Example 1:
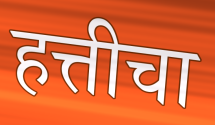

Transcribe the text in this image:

हत्तीचा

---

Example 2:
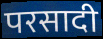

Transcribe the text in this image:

परसादी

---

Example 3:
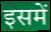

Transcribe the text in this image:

इसमें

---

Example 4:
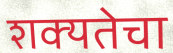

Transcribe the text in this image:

शक्‍यतेचा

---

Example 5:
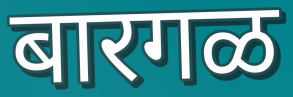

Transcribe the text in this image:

बारगळ